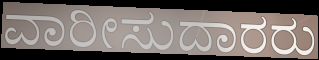
ವಾರೀಸುದಾರರು